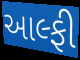
આલ્ફી